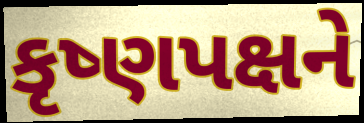
કૃષ્ણપક્ષને